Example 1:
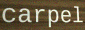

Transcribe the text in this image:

carpel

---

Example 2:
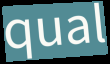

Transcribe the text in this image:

qual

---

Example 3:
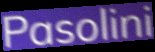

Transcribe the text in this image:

Pasolini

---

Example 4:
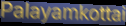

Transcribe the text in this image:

Palayamkottai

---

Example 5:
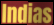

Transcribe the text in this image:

Indias